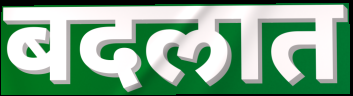
बदलात